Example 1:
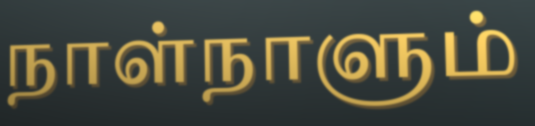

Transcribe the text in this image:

நாள்நாளும்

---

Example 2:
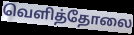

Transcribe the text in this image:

வெளித்தோலை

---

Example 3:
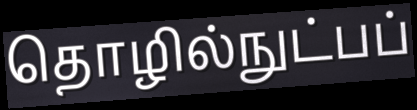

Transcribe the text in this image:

தொழில்நுட்பப்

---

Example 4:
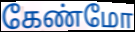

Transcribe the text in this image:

கேண்மோ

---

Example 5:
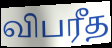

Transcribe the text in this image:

விபரீத